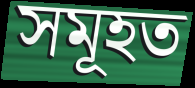
সমূহত